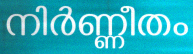
നിർണ്ണീതം